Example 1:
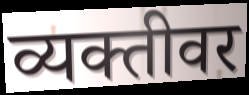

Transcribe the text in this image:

व्यक्तीवर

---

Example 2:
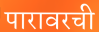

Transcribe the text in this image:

पारावरची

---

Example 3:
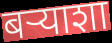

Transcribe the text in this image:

बऱ्याशा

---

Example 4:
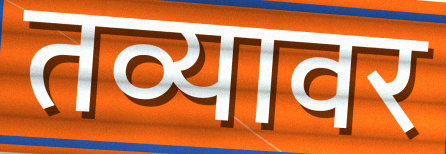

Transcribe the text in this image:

तव्यावर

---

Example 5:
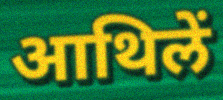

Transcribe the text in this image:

आथिलें